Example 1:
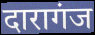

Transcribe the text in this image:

दारागंज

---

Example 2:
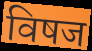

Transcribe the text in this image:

विषज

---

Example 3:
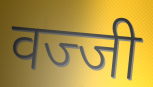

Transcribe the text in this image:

वज्जी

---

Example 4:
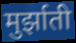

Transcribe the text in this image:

मुर्झाती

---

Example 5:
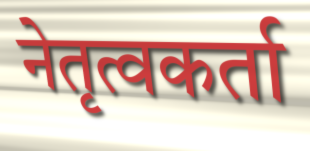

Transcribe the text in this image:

नेतृत्वकर्ता